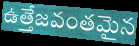
ఉత్తేజవంతమైన